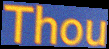
Thou